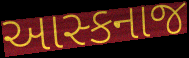
આસ્કનાજ